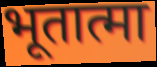
भूतात्मा